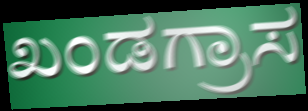
ಖಂಡಗ್ರಾಸ